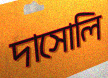
দাসোলি